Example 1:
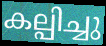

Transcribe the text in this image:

കല്പിച്ചു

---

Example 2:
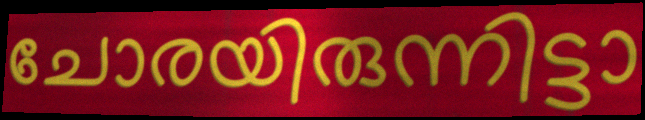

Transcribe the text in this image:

ചോരയിരുന്നിട്ടാ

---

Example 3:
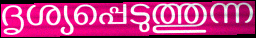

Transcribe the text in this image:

ദൃശ്യപ്പെടുത്തുന്ന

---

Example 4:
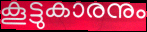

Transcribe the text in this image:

കൂട്ടുകാരനും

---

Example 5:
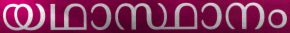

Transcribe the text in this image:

യഥാസ്ഥാനം